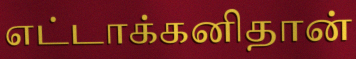
எட்டாக்கனிதான்